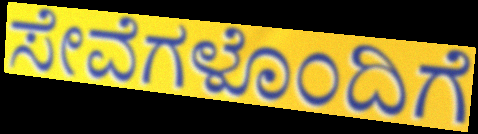
ಸೇವೆಗಳೊಂದಿಗೆ